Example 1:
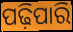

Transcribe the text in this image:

ପଢ଼ିପାରି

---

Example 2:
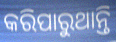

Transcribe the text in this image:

କରିପାରୁଥାନ୍ତି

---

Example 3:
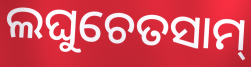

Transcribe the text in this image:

ଲଘୁଚେତସାମ୍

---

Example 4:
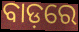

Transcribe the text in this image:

ବାଡ଼ରେ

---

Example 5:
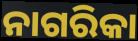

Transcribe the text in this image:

ନାଗରିକା